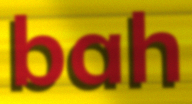
bah